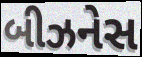
બીઝનેસ